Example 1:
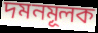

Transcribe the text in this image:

দমনমূলক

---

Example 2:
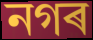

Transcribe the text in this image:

নগৰ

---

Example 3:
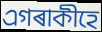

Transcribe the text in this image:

এগৰাকীহে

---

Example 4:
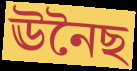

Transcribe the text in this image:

ঊনৈছ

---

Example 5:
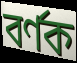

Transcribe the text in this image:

বৰ্ণক